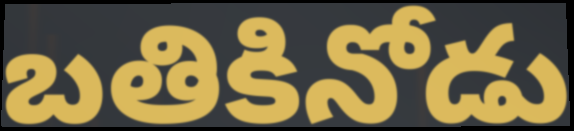
బతికినోడు